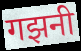
गझनी